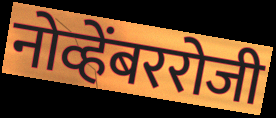
नोव्हेंबररोजी